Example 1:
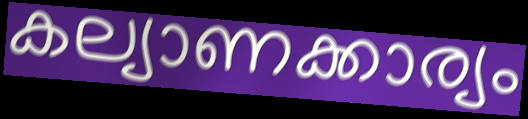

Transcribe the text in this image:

കല്യാണക്കാര്യം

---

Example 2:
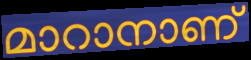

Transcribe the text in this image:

മാറാനാണ്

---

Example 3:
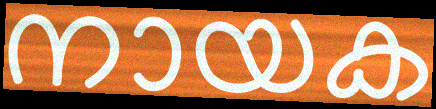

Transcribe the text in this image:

നായക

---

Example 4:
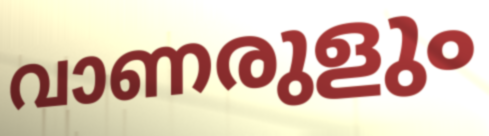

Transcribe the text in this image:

വാണരുളും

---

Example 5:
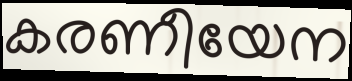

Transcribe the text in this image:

കരണീയേന